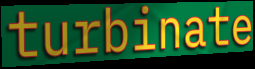
turbinate